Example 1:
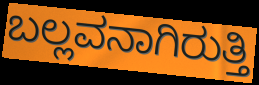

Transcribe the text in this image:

ಬಲ್ಲವನಾಗಿರುತ್ತಿ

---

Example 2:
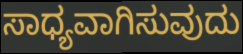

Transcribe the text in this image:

ಸಾಧ್ಯವಾಗಿಸುವುದು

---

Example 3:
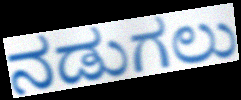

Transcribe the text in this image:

ನಡುಗಲು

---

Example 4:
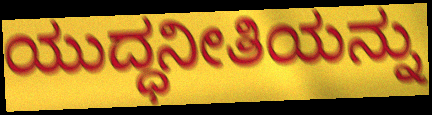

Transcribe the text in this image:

ಯುದ್ಧನೀತಿಯನ್ನು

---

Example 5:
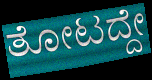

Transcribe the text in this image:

ತೋಟದ್ದೇ